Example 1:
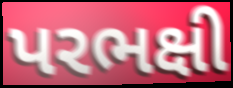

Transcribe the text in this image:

પરભક્ષી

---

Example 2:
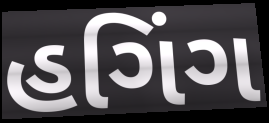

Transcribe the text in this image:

હગિંગ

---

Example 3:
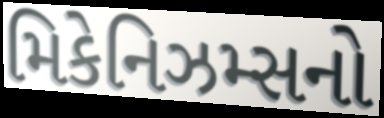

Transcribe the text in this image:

મિકેનિઝમ્સનો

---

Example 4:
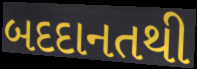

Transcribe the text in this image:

બદદાનતથી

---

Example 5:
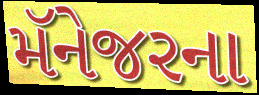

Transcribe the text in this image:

મૅનેજરના